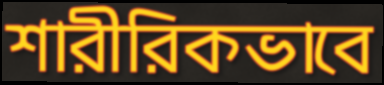
শারীরিকভাবে